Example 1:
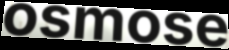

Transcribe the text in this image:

osmose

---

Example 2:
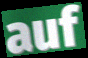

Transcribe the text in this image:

auf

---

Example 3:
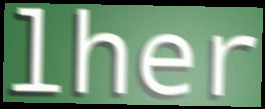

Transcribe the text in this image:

lher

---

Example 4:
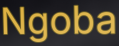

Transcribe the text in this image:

Ngoba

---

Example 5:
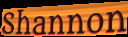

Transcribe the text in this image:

Shannon